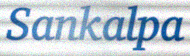
Sankalpa